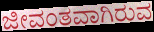
ಜೀವಂತವಾಗಿರುವ